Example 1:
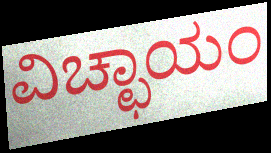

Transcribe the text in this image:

ವಿಚ್ಛಾಯಂ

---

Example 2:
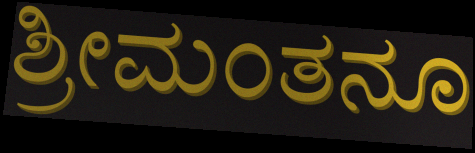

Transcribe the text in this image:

ಶ್ರೀಮಂತನೂ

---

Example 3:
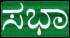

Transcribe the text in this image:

ಸಭಾ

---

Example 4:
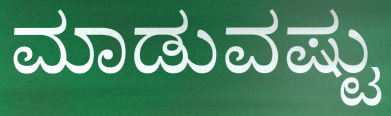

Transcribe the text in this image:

ಮಾಡುವಷ್ಟು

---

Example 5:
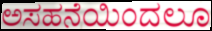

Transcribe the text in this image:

ಅಸಹನೆಯಿಂದಲೂ